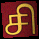
சி